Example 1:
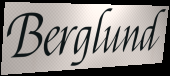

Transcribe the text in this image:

Berglund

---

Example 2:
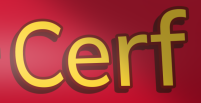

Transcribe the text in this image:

Cerf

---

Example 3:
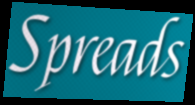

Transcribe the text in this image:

Spreads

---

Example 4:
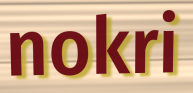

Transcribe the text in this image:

nokri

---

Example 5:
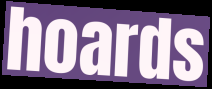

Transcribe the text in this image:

hoards